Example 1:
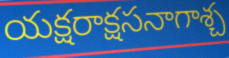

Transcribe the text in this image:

యక్షరాక్షసనాగాశ్చ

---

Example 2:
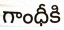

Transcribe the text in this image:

గాంధీకి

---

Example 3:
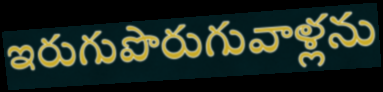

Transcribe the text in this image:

ఇరుగుపొరుగువాళ్లను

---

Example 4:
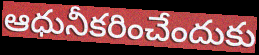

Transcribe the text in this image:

ఆధునీకరించేందుకు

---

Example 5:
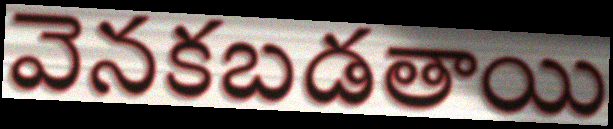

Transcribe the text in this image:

వెనకబడతాయి